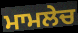
ਮਾਮਲੇਚ